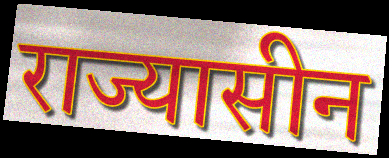
राज्यासीन